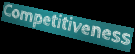
Competitiveness